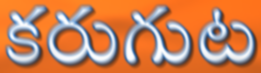
కరుగుట